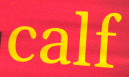
calf